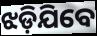
ଝଡ଼ିଯିବେ